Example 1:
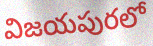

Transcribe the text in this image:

విజయపురలో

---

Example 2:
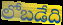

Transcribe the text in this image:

లోబడేది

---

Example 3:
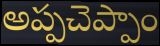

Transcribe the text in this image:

అప్పచెప్పాం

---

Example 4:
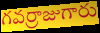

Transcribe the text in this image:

గవర్రాజుగారు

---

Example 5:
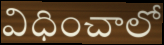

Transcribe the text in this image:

విధించాలో